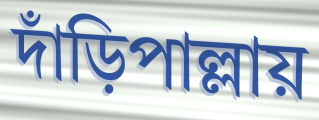
দাঁড়িপাল্লায়